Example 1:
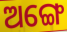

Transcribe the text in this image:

ଅଙ୍ଗେ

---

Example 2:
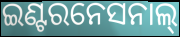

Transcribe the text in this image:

ଇଣ୍ଟରନେସନାଲ୍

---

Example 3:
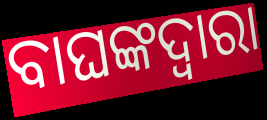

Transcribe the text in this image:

ବାଘଙ୍କଦ୍ୱାରା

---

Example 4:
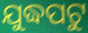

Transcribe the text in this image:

ଯୁଦ୍ଧପଟୁ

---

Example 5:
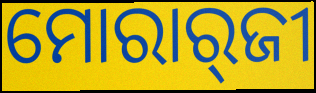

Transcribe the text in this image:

ମୋରାର୍‍ଜୀ